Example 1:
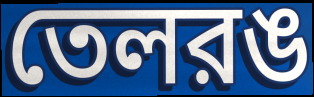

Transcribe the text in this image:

তেলরঙ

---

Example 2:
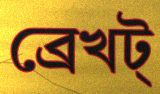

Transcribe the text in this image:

ব্রেখট্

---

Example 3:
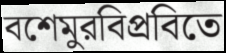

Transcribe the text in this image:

বশেমুরবিপ্রবিতে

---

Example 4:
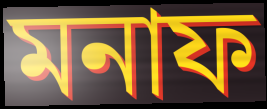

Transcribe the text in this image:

মনাফ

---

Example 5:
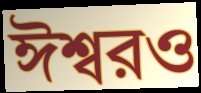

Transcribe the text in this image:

ঈশ্বরও